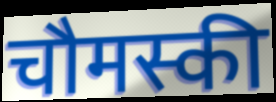
चौमस्की